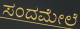
ಸಂದಮೇಲೆ